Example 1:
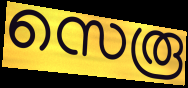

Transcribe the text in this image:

സെരൂ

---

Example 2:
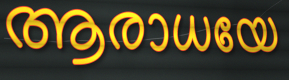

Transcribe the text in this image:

ആരാധയേ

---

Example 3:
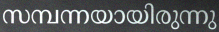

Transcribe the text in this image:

സമ്പന്നയായിരുന്നു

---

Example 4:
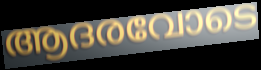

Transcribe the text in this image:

ആദരവോടെ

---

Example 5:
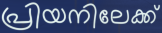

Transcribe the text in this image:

പ്രിയനിലേക്ക്